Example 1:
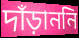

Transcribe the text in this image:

দাঁড়াননি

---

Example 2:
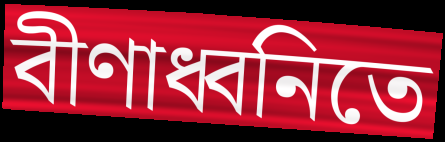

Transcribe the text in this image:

বীণাধ্বনিতে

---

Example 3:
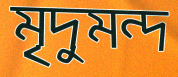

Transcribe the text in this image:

মৃদুমন্দ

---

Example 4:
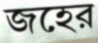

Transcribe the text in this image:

জহের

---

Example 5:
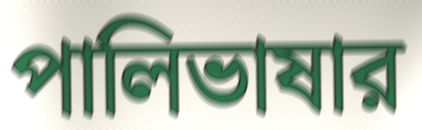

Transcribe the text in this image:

পালিভাষার